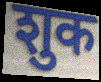
शुक